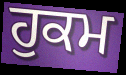
ਹੁਕਮ